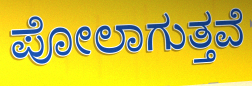
ಪೋಲಾಗುತ್ತವೆ